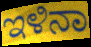
ಇಳಿನಾ